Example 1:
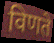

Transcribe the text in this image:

विणते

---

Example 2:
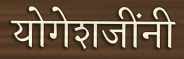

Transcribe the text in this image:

योगेशजींनी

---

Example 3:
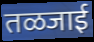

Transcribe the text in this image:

तळजाई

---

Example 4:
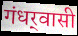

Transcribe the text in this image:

गंधर्वासी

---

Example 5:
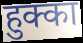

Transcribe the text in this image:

हुक्का